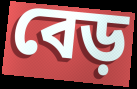
বেড়